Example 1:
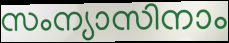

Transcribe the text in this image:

സംന്യാസിനാം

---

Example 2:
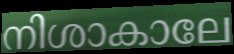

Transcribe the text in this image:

നിശാകാലേ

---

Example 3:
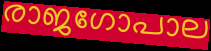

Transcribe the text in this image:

രാജഗോപാല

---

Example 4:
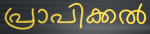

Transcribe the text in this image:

പ്രാപിക്കൽ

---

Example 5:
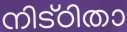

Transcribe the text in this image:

നിട്ഠിതാ